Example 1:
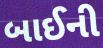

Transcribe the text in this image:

બાઈની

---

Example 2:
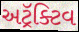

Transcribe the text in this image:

અટ્રૅક્ટિવ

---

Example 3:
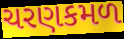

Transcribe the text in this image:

ચરણકમળ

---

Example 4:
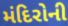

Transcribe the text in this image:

મંદિરોની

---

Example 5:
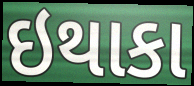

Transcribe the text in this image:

ઇથાકા